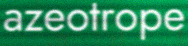
azeotrope